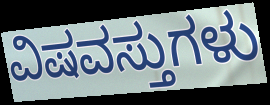
ವಿಷವಸ್ತುಗಳು